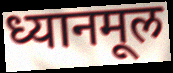
ध्यानमूल